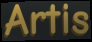
Artis